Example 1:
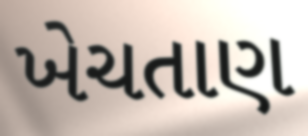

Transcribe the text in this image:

ખેચતાણ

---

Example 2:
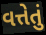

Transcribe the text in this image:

વત્તેતું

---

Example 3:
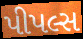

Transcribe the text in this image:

પીપલ્સ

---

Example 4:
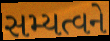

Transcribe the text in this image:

સમ્યત્વને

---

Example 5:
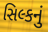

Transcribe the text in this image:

સિલ્કનું